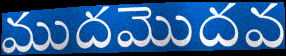
ముదమొదవ